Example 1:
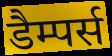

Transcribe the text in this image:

डैम्पर्स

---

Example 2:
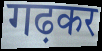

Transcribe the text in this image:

गढ़कर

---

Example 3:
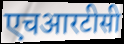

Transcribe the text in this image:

एचआरटीसी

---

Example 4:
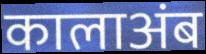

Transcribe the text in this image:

कालाअंब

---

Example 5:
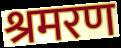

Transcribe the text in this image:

श्रमरण